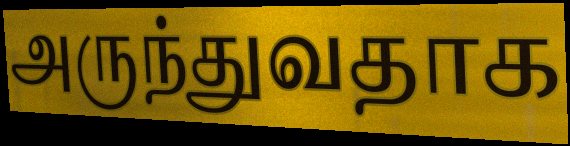
அருந்துவதாக